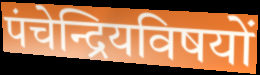
पंचेन्द्रियविषयों